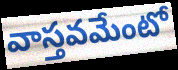
వాస్తవమేంటో